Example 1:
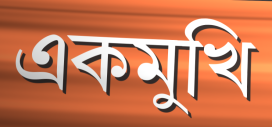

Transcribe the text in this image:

একমুখি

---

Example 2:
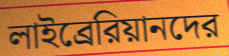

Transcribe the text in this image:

লাইব্রেরিয়ানদের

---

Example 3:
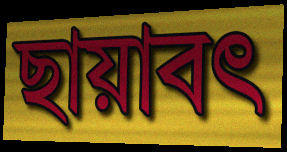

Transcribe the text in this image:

ছায়াবৎ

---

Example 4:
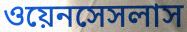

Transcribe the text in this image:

ওয়েনসেসলাস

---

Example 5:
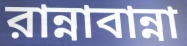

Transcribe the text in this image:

রান্নাবান্না